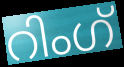
റിംഗ്